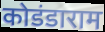
कोडंडाराम